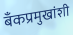
बँकप्रमुखांशी